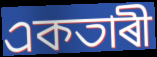
একতাৰী